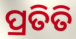
ପ୍ରତିତି